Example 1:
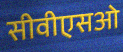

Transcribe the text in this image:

सीवीएसओ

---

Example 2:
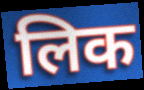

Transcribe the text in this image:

लिक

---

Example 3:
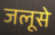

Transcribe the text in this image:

जलूसे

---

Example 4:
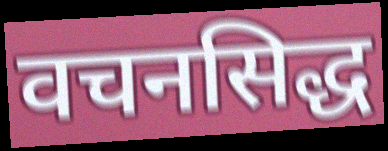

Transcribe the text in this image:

वचनसिद्ध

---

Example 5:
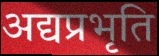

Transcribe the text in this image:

अद्यप्रभृति